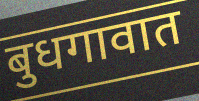
बुधगावात